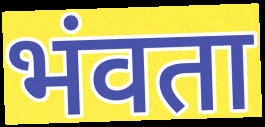
भंवता